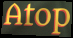
Atop